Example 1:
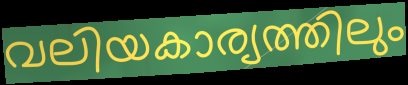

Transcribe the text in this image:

വലിയകാര്യത്തിലും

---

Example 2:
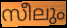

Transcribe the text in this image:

സീലും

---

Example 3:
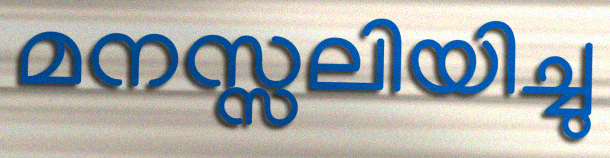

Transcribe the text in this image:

മനസ്സലിയിച്ചു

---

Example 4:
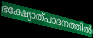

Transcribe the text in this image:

ഭക്ഷ്യോത്പാദനത്തിൽ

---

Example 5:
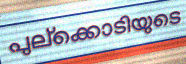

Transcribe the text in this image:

പുല്ക്കൊടിയുടെ